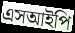
এসআইপি